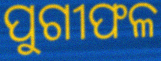
ପୁଗୀଫଳ